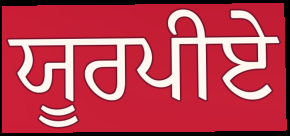
ਯੂਰਪੀਏ